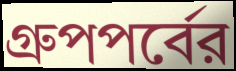
গ্রুপপর্বের